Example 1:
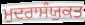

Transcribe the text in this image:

ਮੁਦਰਾਸੰਯੁਕਤ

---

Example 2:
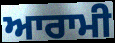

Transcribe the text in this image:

ਆਰਾਮੀ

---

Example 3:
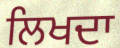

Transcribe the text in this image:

ਲਿਖਦਾ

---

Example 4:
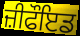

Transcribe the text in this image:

ਜ਼ੀਫੌਇਡ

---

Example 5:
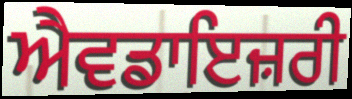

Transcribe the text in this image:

ਐਵਡਾਇਜ਼ਰੀ